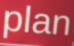
plan